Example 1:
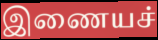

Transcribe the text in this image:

இணையச்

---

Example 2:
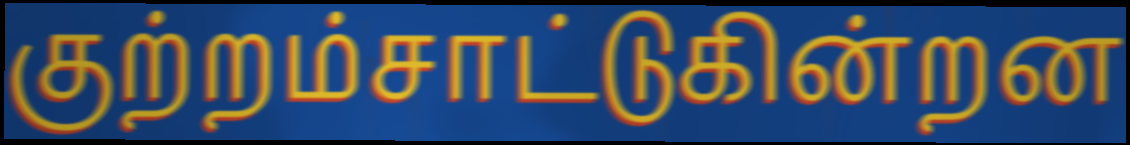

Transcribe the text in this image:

குற்றம்சாட்டுகின்றன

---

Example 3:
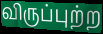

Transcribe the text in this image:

விருப்புற்ற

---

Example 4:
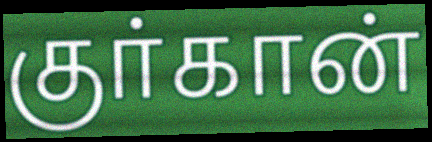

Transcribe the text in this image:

குர்கான்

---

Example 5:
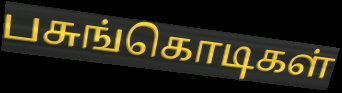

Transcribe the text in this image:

பசுங்கொடிகள்